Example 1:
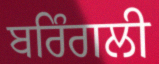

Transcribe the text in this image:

ਬਰਿੰਗਲੀ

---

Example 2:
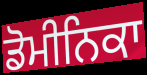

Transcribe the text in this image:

ਡੋਮੀਨਿਕਾ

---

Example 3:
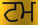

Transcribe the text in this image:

ਟਮ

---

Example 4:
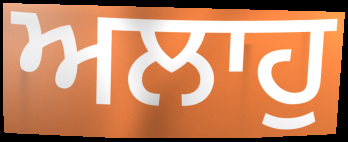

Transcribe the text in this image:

ਅਲਾਹੁ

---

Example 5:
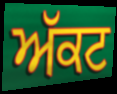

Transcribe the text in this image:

ਅੱਕਟ